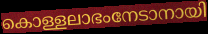
കൊള്ളലാഭംനേടാനായി